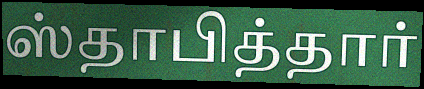
ஸ்தாபித்தார்